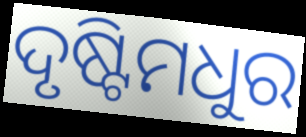
ଦୃଷ୍ଟିମଧୁର